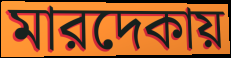
মারদেকায়